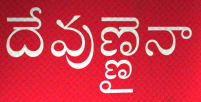
దేవుణ్ణైనా